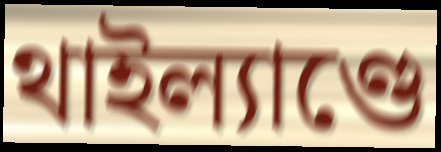
থাইল্যাণ্ডে